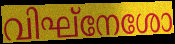
വിഘ്നേശോ